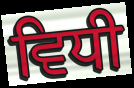
ਵਿਧੀ